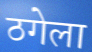
ठगेला